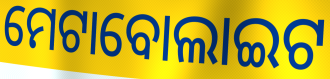
ମେଟାବୋଲାଇଟ